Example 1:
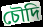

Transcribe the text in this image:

চৌদি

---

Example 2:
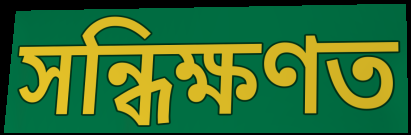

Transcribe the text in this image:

সন্ধিক্ষণত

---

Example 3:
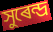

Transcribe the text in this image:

সুৰেন্দ্ৰ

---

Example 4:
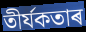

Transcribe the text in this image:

তীৰ্যকতাৰ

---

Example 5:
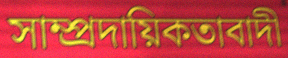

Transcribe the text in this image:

সাম্প্ৰদায়িকতাবাদী